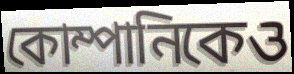
কোম্পানিকেও